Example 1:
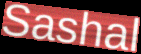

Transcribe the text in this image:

Sashal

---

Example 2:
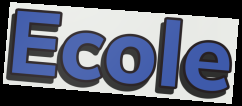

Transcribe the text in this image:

Ecole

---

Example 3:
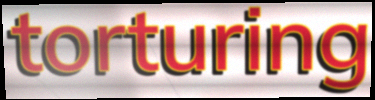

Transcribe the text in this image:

torturing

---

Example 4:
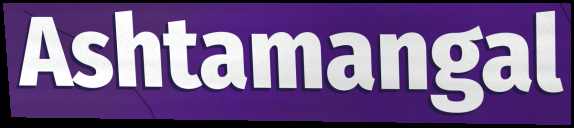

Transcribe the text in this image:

Ashtamangal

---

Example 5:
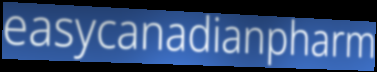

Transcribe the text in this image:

easycanadianpharm